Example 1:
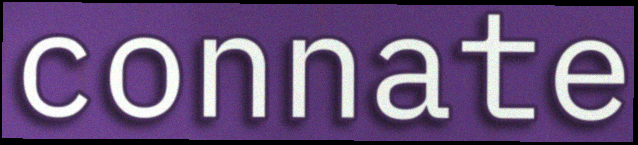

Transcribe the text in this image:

connate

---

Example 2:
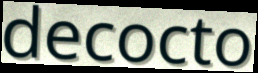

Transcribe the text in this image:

decocto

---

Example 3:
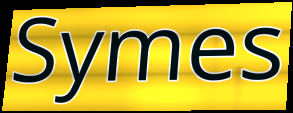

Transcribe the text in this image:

Symes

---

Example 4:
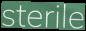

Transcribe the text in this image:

sterile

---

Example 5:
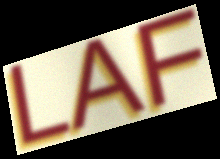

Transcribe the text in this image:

LAF